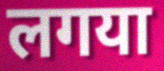
लगया